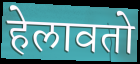
हेलावतो